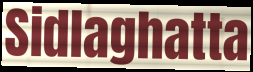
Sidlaghatta